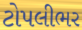
ટોપલીભર